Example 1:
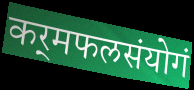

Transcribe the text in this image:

कर्मफलसंयोगं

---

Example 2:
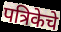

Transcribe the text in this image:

पत्रिकेचे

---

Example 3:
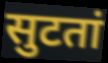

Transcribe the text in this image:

सुटतां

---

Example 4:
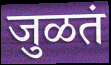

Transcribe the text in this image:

जुळतं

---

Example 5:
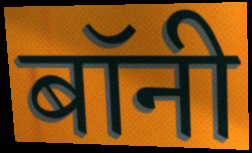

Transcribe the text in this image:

बॉनी